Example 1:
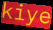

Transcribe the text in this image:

kiye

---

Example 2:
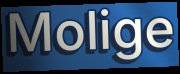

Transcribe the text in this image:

Molige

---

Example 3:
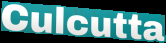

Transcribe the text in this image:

Culcutta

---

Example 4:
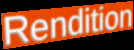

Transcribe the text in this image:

Rendition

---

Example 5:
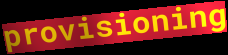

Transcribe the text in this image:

provisioning